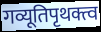
गव्यूतिपृथक्त्व